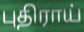
புதிராய்